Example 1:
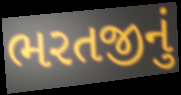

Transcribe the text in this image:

ભરતજીનું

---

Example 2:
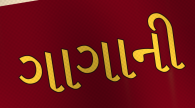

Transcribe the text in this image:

ગાગાની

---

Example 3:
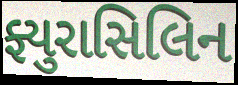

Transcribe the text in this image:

ફ્યુરાસિલિન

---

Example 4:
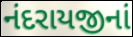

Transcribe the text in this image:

નંદરાયજીનાં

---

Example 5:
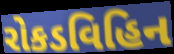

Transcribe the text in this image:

રોકડવિહિન